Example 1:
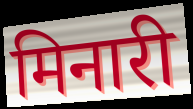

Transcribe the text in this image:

मिनारी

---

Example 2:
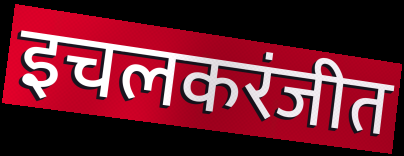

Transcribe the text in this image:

इचलकरंजीत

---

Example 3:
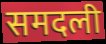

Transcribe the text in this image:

समदली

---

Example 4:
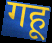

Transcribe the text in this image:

गहू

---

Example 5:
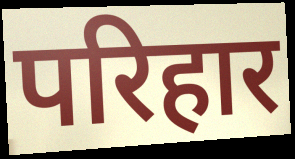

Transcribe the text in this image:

परिहार